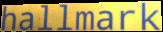
hallmark